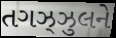
તગઝ્ઝુલને